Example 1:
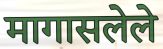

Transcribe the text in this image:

मागासलेले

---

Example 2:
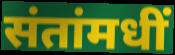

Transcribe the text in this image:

संतांमधीं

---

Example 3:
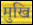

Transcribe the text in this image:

मुखि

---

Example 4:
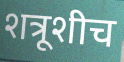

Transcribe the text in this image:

शत्रूशीच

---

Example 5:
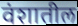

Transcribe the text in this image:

वंशातील